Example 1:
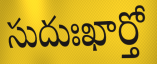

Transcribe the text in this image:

సుదుఃఖార్తో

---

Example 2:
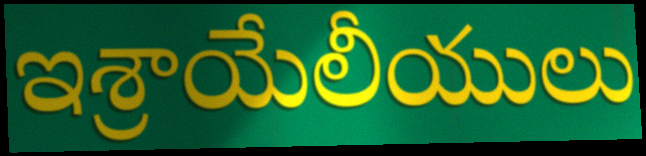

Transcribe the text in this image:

ఇశ్రాయేలీయులు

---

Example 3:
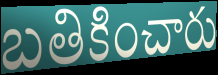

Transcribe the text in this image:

బతికించారు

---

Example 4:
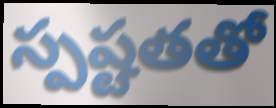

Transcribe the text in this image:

స్పష్టతతో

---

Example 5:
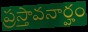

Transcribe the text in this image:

ప్రస్తావనార్హం